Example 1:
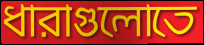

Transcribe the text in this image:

ধারাগুলোতে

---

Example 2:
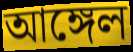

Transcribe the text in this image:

আঙ্গেল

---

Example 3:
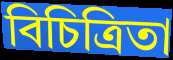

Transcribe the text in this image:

বিচিত্রিতা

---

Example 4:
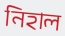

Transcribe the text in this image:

নিহাল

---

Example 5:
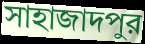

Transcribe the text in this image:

সাহাজাদপুর